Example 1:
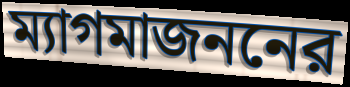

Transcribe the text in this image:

ম্যাগমাজননের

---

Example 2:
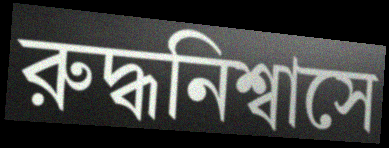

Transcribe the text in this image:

রুদ্ধনিশ্বাসে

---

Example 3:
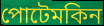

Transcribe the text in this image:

পোটেমকিন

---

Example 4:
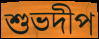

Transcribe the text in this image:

শুভদীপ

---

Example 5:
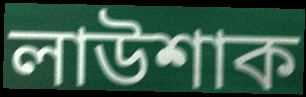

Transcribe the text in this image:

লাউশাক